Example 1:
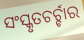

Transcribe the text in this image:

ସଂସ୍କୃତଚର୍ଚ୍ଚାର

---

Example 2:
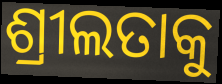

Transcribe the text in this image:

ଶ୍ରୀଲତାକୁ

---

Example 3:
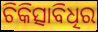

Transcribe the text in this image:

ଚିକିତ୍ସାବିଧିର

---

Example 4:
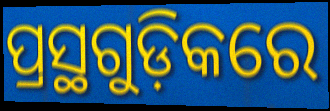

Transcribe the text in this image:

ପ୍ରସ୍ଥଗୁଡ଼ିକରେ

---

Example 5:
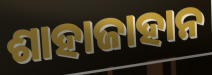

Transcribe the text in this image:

ଶାହାଜାହାନ